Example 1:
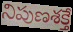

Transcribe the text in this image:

నిపుణశక్తే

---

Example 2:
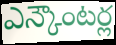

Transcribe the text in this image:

ఎన్కౌంటర్ల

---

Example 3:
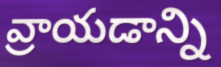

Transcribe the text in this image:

వ్రాయడాన్ని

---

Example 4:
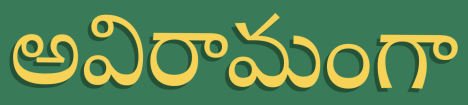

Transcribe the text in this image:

అవిరామంగా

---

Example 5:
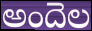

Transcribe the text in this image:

అందెల